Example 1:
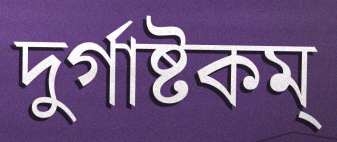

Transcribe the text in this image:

দুর্গাষ্টকম্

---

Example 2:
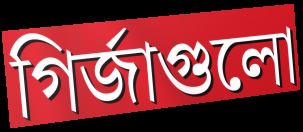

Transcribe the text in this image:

গির্জাগুলো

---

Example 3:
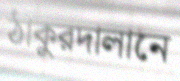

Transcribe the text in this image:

ঠাকুরদালানে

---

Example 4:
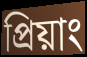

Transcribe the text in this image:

প্রিয়াং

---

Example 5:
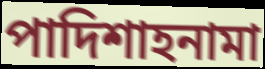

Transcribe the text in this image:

পাদিশাহনামা